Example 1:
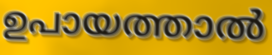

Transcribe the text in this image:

ഉപായത്താൽ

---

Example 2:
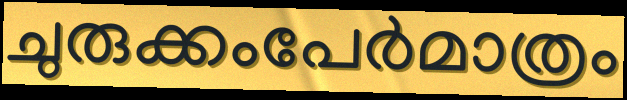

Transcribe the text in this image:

ചുരുക്കംപേർമാത്രം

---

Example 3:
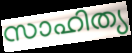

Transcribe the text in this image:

സാഹിത്യ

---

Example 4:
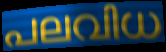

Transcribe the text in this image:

പലവിധ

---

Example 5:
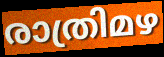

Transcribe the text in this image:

രാത്രിമഴ